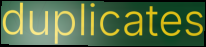
duplicates